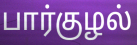
பார்குழல்